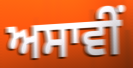
ਅਸਾਵੀਂ